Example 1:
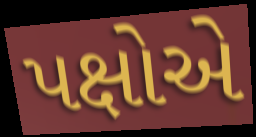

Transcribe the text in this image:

પક્ષોએ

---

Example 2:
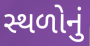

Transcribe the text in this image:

સ્થળોનું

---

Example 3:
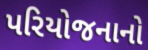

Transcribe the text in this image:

પરિયોજનાનો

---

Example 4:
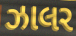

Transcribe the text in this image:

ઝાલર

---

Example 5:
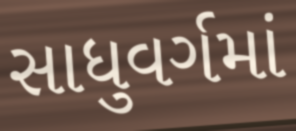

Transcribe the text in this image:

સાધુવર્ગમાં